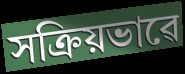
সক্ৰিয়ভাৱে